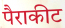
पैराकीट